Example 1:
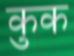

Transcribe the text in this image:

कुक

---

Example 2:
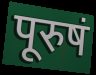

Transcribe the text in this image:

पूरुषं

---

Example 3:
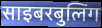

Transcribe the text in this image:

साइबरबुलिंग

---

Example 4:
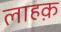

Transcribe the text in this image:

लाहक़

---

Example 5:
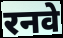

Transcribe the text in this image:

रनवे